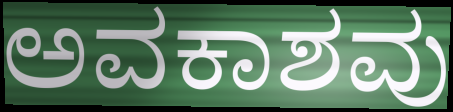
ಅವಕಾಶವು